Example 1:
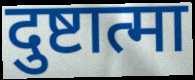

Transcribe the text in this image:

दुष्टात्मा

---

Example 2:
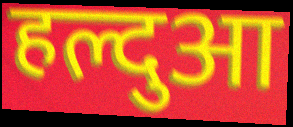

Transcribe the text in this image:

हल्दुआ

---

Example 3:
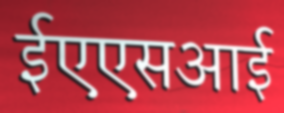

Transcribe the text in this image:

ईएएसआई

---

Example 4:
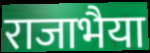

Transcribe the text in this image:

राजाभैया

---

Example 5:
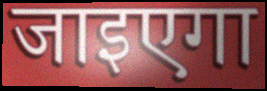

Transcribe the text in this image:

जाइएगा